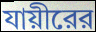
যায়ীরের